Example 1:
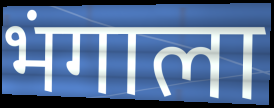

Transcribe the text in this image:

भंगाला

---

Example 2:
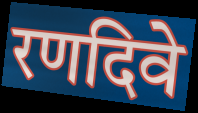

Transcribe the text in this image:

रणदिवे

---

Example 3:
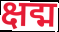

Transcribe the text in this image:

क्षद्म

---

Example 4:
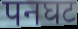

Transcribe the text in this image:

पनघट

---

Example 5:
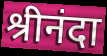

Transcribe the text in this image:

श्रीनंदा